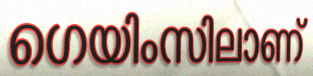
ഗെയിംസിലാണ്